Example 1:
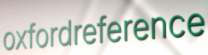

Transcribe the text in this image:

oxfordreference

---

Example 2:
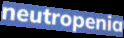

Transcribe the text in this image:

neutropenia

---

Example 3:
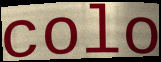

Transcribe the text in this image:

colo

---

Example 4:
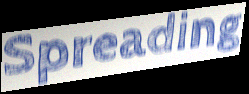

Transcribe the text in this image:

Spreading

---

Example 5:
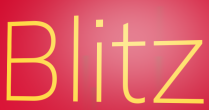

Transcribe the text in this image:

Blitz